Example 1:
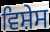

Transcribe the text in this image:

ਵਿਸ਼ੇਸ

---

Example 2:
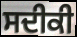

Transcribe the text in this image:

ਸਦੀਕੀ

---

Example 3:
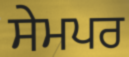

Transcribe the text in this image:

ਸੇਮਪਰ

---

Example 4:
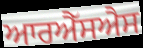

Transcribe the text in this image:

ਆਰਐੱਸਐਸ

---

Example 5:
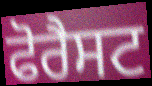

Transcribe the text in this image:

ਫੋਰੈਸਟ